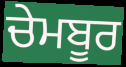
ਚੇਮਬੂਰ